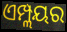
ଏମ୍ପ୍ଲୟର